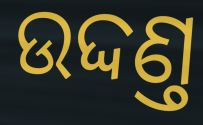
ଉଦ୍ଦଣ୍ତ